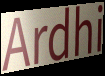
Ardhi